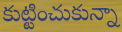
కుట్టించుకున్నా